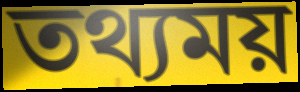
তথ্যময়